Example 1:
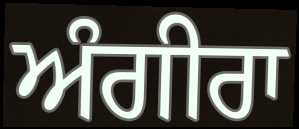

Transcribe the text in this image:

ਅੰਗੀਰਾ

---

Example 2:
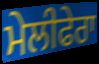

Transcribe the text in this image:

ਮੇਲੀਫੇਰਾ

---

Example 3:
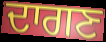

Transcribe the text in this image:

ਦਾਗਣ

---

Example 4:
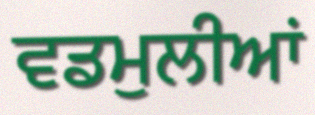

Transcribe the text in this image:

ਵਡਮੁਲੀਆਂ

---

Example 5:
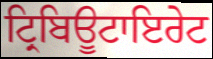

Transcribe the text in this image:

ਟ੍ਰਿਬਿਊਟਾਇਰੇਟ